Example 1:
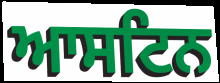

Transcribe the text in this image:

ਆਸਟਿਨ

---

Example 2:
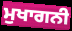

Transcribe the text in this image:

ਮੁਖਾਗਨੀ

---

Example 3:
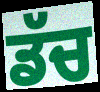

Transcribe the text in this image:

ਡੱਚ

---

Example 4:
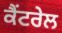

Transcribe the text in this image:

ਕੈਂਟਰੇਲ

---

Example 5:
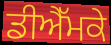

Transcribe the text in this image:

ਡੀਐੱਮਕੇ